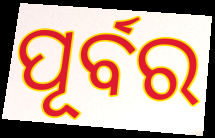
ପୂର୍ବର